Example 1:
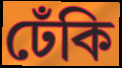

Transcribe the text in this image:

ঢেঁকি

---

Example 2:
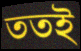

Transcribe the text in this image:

ততই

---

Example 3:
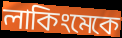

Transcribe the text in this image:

লাকিংমেকে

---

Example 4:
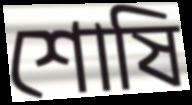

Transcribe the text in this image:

শোষি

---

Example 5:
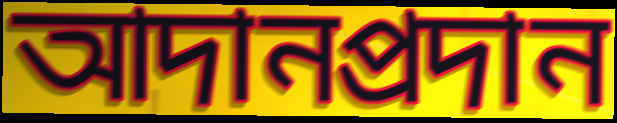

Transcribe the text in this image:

আদানপ্রদান